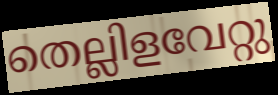
തെല്ലിളവേറ്റു